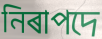
নিৰাপদে